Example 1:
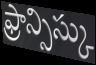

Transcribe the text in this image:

ఫ్రాన్సిస్కు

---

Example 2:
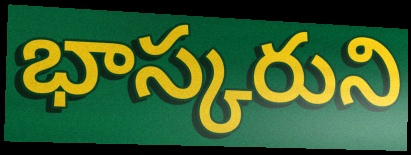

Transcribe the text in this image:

భాస్కరుని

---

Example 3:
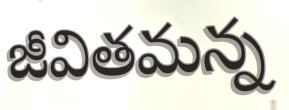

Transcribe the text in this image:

జీవితమన్న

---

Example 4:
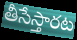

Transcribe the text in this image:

తీసేస్తారట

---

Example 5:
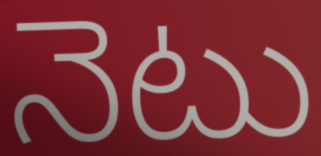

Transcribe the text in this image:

నెటు